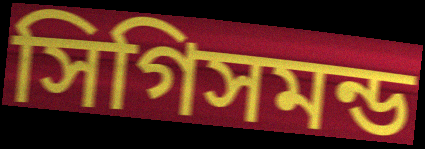
সিগিসমন্ড